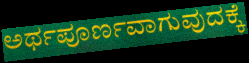
ಅರ್ಥಪೂರ್ಣವಾಗುವುದಕ್ಕೆ